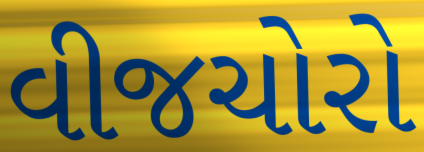
વીજચોરો